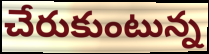
చేరుకుంటున్న